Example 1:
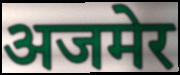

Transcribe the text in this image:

अजमेर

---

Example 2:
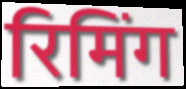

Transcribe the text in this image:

रिमिंग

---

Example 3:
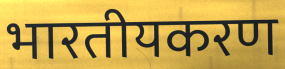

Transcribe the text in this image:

भारतीयकरण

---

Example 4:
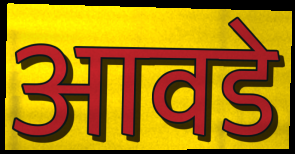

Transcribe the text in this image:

आवडे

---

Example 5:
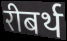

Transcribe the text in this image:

रीबर्थ